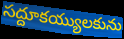
సద్దూకయ్యులకును